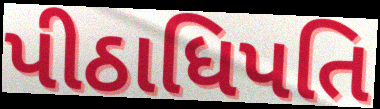
પીઠાધિપતિ